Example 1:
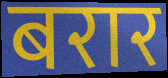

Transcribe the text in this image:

बरार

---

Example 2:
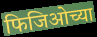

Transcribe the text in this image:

फिजिओच्या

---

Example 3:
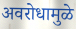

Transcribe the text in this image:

अवरोधामुळे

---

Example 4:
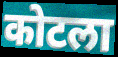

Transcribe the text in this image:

कोटला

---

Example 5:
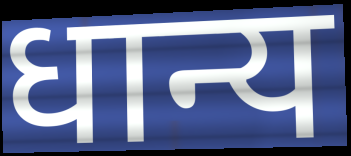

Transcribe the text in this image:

धान्य